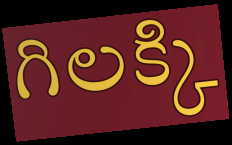
గిలక్కి